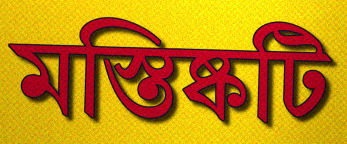
মস্তিষ্কটি